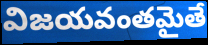
విజయవంతమైతే